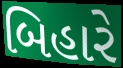
બિહારે